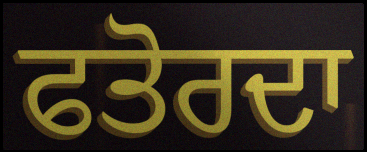
ਫਤੋਰਦਾ